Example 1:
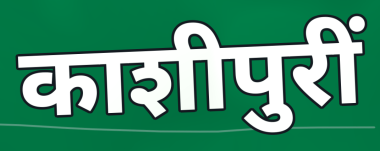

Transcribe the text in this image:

काशीपुरीं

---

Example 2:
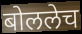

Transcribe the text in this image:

बोललेच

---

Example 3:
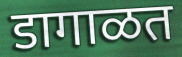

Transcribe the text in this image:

डागाळत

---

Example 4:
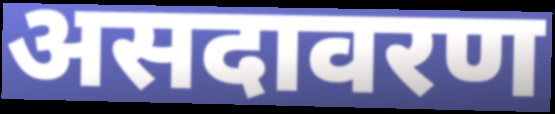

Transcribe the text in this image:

असदावरण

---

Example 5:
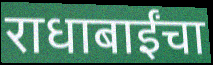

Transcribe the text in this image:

राधाबाईंचा